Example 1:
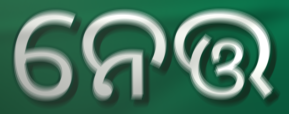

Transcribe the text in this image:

ନେତ୍ତ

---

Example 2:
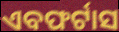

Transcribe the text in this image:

ଏବଫର୍ଟାସ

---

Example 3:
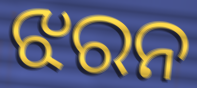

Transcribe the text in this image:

ଝରନ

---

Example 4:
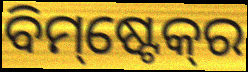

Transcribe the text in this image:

ବିମ୍‌ଷ୍ଟେକ୍‌ର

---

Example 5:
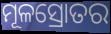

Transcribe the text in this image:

ମୂଳସ୍ରୋତର